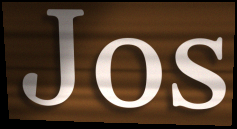
Jos